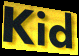
Kid